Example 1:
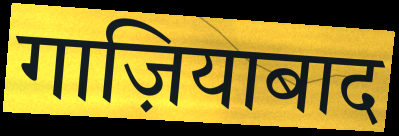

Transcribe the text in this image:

गाज़ियाबाद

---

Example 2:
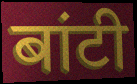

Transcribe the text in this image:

बांटी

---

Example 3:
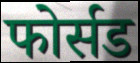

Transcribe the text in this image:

फोर्सड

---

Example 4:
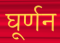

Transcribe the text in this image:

घूर्णन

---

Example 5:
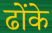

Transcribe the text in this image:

ढोंके